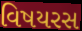
વિષયરસ